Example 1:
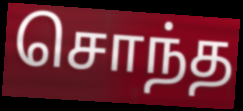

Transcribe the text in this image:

சொந்த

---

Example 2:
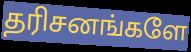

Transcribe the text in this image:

தரிசனங்களே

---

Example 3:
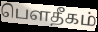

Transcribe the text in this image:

பௌதீகம்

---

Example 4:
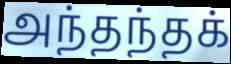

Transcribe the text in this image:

அந்தந்தக்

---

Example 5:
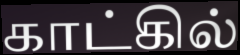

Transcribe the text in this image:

காட்கில்